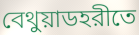
বেথুয়াডহরীতে